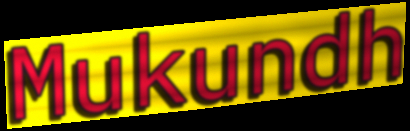
Mukundh